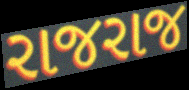
રાજરાજ